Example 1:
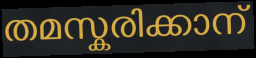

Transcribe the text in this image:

തമസ്കരിക്കാന്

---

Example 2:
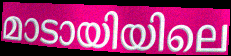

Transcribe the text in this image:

മാടായിയിലെ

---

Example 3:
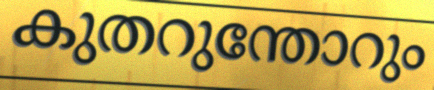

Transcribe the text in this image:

കുതറുന്തോറും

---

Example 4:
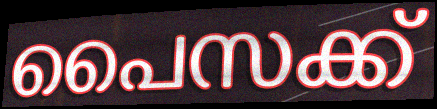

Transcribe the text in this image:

പൈസക്ക്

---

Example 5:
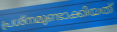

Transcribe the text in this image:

പ്രശ്നമുണ്ടാക്കിയത്